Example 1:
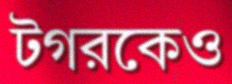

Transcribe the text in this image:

টগরকেও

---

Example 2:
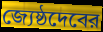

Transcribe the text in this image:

জ্যেষ্ঠদেবের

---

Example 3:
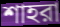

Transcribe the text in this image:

শাহরা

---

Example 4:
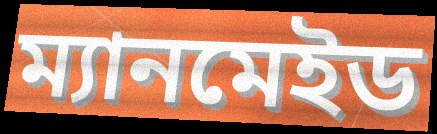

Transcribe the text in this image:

ম্যানমেইড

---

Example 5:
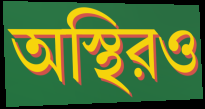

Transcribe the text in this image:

অস্থিরও